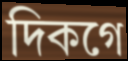
দিকগে